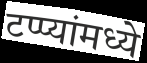
टप्प्यांमध्ये